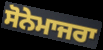
ਸੋਨੇਮਾਜਰਾ